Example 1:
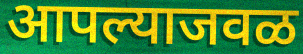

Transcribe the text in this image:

आपल्याजवळ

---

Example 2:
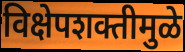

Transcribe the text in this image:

विक्षेपशक्तीमुळे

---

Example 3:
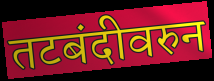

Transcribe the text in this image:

तटबंदीवरुन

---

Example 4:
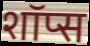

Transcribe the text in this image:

शॉप्स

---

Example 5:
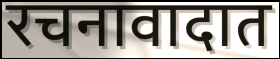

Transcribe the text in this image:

रचनावादात